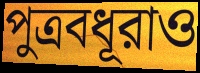
পুত্রবধূরাও